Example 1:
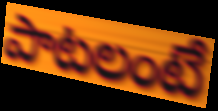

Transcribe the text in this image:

పాటలంటే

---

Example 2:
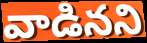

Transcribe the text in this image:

వాడినని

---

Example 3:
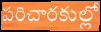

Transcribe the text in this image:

పరిచారకుల్లో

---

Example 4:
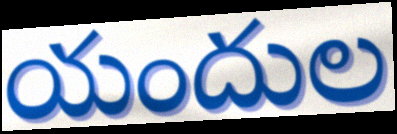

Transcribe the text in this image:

యందుల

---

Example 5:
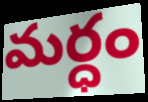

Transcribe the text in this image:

మర్ధం